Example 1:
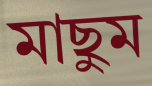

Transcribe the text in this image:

মাছুম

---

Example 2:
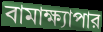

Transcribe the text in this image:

বামাক্ষ্যাপার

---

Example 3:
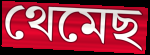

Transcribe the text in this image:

থেমেছ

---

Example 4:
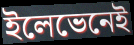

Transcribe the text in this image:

ইলেভেনেই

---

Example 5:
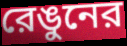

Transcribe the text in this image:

রেঙুনের